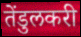
तेंडुलकरी